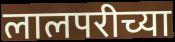
लालपरीच्या